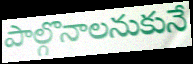
పాల్గొనాలనుకునే